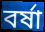
বৰ্ষা